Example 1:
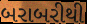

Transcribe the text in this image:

બરાબરીથી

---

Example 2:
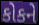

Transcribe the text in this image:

કોકને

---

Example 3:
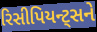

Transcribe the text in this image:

રિસીપિયન્ટ્સને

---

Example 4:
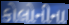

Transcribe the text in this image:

કોલોનીના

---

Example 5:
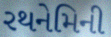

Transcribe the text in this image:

રથનેમિની